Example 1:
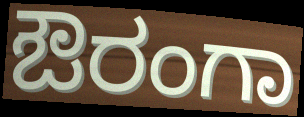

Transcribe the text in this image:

ಔರಂಗಾ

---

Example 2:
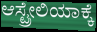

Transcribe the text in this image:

ಆಸ್ಟ್ರೇಲಿಯಾಕ್ಕೆ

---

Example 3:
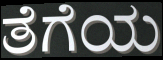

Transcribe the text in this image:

ತೆಗೆಯ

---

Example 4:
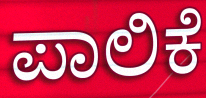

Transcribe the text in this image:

ಪಾಲಿಕೆ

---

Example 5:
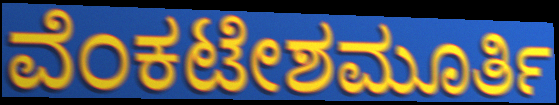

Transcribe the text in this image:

ವೆಂಕಟೇಶಮೂರ್ತಿ